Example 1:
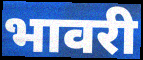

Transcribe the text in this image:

भावरी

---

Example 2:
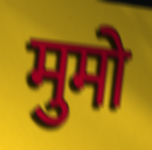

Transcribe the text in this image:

मुमो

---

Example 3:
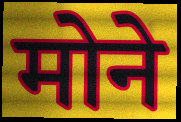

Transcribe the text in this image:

मोने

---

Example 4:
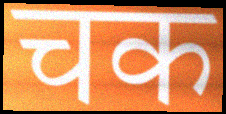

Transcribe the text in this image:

चक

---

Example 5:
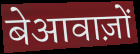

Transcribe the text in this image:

बेआवाज़ों